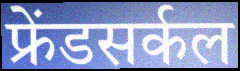
फ्रेंडसर्कल